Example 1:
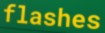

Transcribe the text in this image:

flashes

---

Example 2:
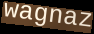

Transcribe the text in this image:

wagnaz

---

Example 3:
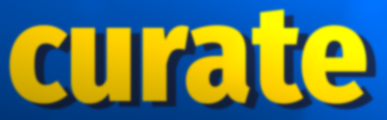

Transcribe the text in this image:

curate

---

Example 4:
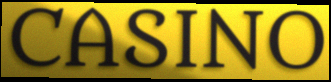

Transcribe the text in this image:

CASINO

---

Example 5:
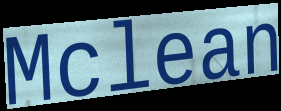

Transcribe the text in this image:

Mclean